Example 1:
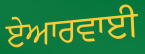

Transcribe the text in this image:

ਏਆਰਵਾਈ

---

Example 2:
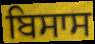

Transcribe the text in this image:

ਬਿਸਾਸ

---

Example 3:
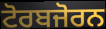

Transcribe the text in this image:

ਟੋਰਬਜੋਰਨ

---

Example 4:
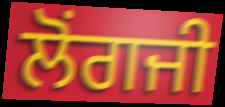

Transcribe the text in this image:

ਲੋਂਗਜੀ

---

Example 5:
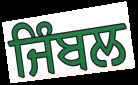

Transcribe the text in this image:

ਜਿੰਬਲ